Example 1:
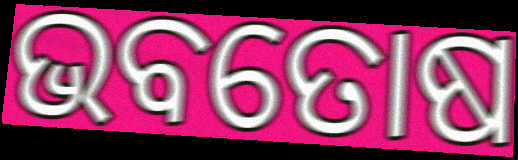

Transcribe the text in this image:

ଭବତୋଷ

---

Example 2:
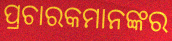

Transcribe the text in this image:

ପ୍ରଚାରକମାନଙ୍କର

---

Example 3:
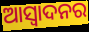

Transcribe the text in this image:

ଆସ୍ବାଦନର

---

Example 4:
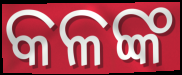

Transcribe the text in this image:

କଳଙ୍କ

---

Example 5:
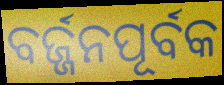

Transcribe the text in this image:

ବର୍ଜ୍ଜନପୂର୍ବକ